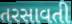
તરસાવતી